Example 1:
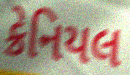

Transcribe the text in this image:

ક્રેનિયલ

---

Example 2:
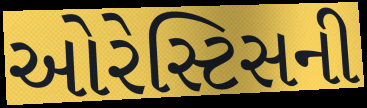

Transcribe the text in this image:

ઓરેસ્ટિસની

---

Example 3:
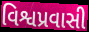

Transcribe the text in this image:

વિશ્વપ્રવાસી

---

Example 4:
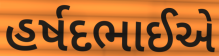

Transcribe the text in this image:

હર્ષદભાઈએ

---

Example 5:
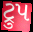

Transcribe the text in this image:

ટ્રુપ